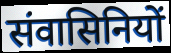
संवासिनियों